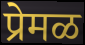
प्रेमळ